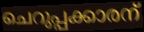
ചെറുപ്പക്കാരന്